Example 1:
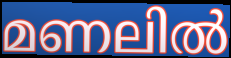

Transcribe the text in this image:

മണലിൽ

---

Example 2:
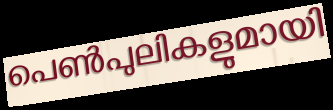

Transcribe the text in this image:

പെൺപുലികളുമായി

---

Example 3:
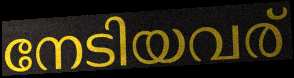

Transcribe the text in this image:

നേടിയവര്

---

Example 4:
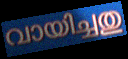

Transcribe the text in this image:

വായിച്ചതു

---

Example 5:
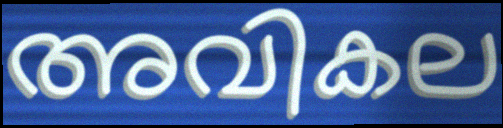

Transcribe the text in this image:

അവികല